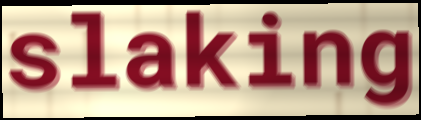
slaking